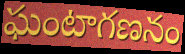
ఘంటాగణనం